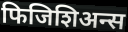
फिजिशिअन्स